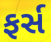
ફર્સ